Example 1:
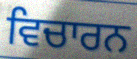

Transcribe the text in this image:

ਵਿਚਾਰਨ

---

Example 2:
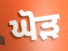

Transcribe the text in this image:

ਘੋੜ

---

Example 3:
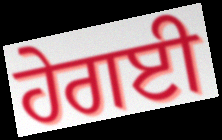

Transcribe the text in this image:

ਹੇਗਈ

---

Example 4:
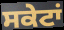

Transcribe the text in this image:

ਸਕੇਟਾਂ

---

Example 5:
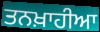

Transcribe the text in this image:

ਤਨਖ਼ਾਹੀਆ